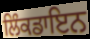
ਲਿੰਕਡਾਇਨ